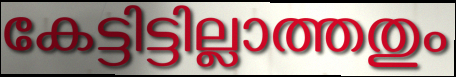
കേട്ടിട്ടില്ലാത്തതും